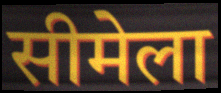
सीमेला